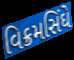
વિક્રમસિંઘે